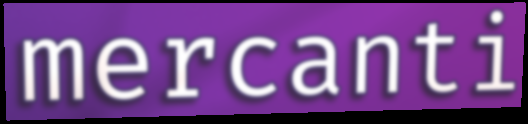
mercanti